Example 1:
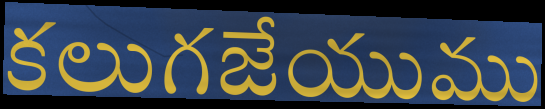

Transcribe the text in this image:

కలుగజేయుము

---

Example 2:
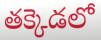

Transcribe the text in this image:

తక్కెడలో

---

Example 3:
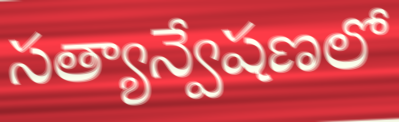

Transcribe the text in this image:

సత్యాన్వేషణలో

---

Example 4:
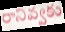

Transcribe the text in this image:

రానివ్వకు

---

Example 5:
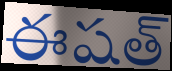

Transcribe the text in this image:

ఈషత్